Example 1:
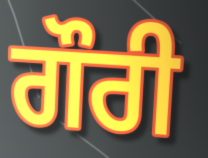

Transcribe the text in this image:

ਗੌਰੀ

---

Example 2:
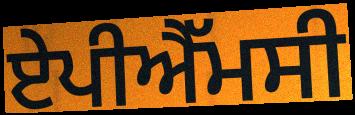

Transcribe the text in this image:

ਏਪੀਐੱਮਸੀ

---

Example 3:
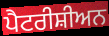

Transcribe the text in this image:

ਪੈਟਰੀਸ਼ੀਅਨ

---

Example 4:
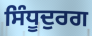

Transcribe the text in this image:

ਸਿੰਧੂਦੁਰਗ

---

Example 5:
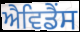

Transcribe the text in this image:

ਐਵਿਡੈਂਸ